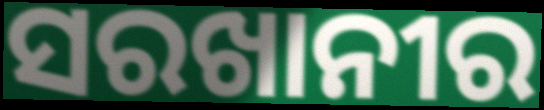
ସରଖାନୀର